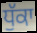
ਧੁੱਕਾ